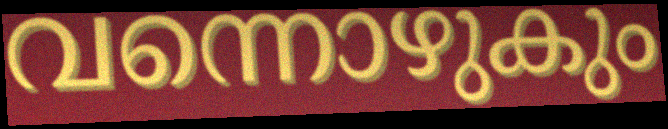
വന്നൊഴുകും